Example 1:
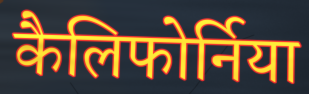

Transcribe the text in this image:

कैलिफोर्निया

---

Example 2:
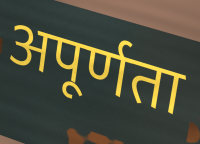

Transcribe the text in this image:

अपूर्णता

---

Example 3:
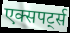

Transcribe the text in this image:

एक्सपर्ट्स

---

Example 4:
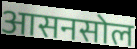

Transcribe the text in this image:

आसनसोल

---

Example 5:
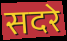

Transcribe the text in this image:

सदरे